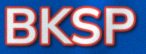
BKSP